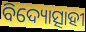
ବିଦ୍ୟୋତ୍ସାହୀ